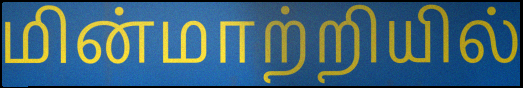
மின்மாற்றியில்